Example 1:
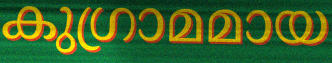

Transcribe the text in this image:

കുഗ്രാമമായ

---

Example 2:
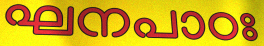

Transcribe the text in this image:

ഘനപാഠഃ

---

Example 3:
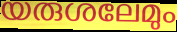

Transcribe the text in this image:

യരുശലേമും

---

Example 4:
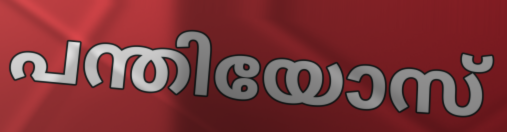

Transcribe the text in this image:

പന്തിയോസ്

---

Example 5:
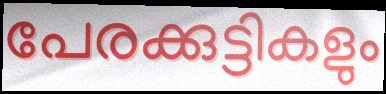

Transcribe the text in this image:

പേരക്കുട്ടികളും